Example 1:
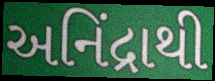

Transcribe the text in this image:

અનિંદ્રાથી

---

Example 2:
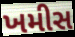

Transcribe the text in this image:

ખમીસ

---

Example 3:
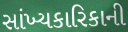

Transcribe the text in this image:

સાંખ્યકારિકાની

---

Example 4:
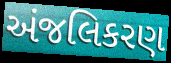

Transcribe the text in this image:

અંજલિકરણ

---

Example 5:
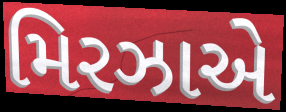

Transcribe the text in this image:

મિરઝાએ